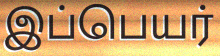
இப்பெயர்